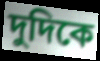
দুদিকে